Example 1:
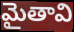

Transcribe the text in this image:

మైతావి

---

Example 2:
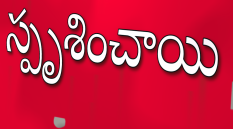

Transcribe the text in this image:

స్పృశించాయి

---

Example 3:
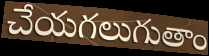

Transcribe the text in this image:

చేయగలుగుతాం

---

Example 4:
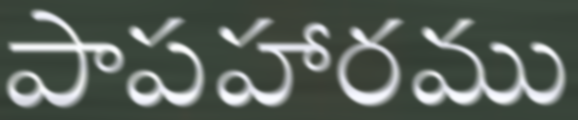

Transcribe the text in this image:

పాపహారము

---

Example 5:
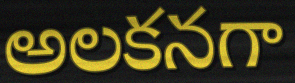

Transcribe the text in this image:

అలకనగా